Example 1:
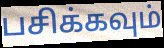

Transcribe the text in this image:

பசிக்கவும்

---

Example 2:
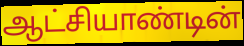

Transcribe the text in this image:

ஆட்சியாண்டின்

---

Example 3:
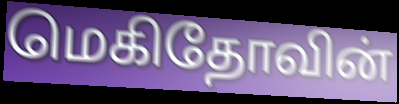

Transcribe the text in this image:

மெகிதோவின்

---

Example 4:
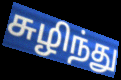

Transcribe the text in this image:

சுழிந்து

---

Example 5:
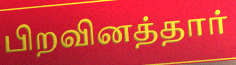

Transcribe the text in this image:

பிறவினத்தார்